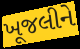
ખૂજલીને